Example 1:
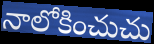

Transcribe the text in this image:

నాలోకించుచు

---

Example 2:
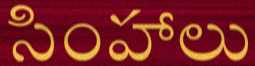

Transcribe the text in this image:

సింహాలు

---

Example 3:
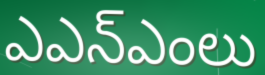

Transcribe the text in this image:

ఎఎన్ఎంలు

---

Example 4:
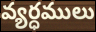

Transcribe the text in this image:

వ్యర్ధములు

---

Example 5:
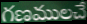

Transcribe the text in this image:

గణములచే